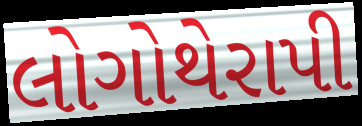
લોગોથેરાપી